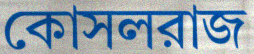
কোসলরাজ